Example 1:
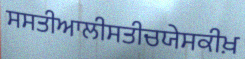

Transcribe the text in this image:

ਸਸਤੀਆਲੀਸਤੀਚਯੇਸਕੀਖ਼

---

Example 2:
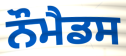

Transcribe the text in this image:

ਨੌਮੈਡਸ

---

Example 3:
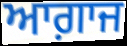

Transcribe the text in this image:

ਆਗ਼ਾਜ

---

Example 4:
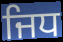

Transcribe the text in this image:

ਜਿਧ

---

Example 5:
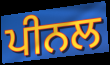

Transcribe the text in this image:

ਪੀਨਲ